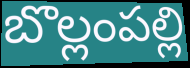
బొల్లంపల్లి